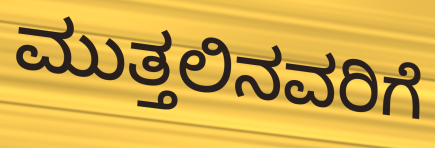
ಮುತ್ತಲಿನವರಿಗೆ